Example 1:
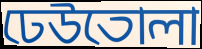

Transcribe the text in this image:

ঢেউতোলা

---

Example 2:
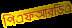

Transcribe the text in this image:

পিএফআরডিএ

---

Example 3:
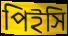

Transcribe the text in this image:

পিইসি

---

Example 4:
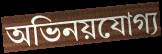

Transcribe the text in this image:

অভিনয়যোগ্য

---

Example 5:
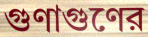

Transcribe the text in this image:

গুণাগুণের